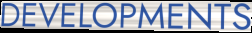
DEVELOPMENTS